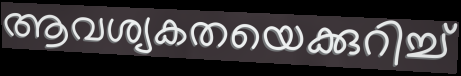
ആവശ്യകതയെക്കുറിച്ച്